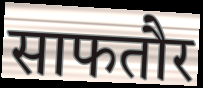
साफतौर